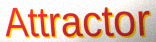
Attractor